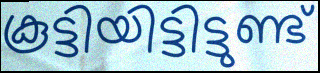
കൂട്ടിയിട്ടിട്ടുണ്ട്